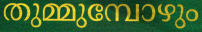
തുമ്മുമ്പോഴും